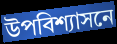
উপবিশ্যাসনে